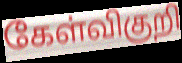
கேள்விகுறி